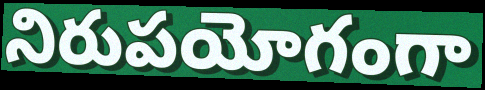
నిరుపయోగంగా